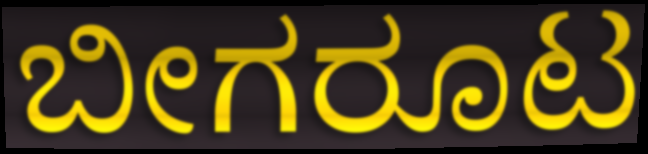
ಬೀಗರೂಟ